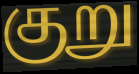
குறு